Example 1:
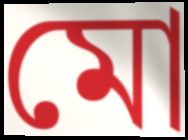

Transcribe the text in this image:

মো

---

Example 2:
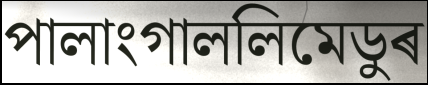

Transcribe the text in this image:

পালাংগাললিমেডুৰ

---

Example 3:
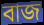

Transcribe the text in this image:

বাজ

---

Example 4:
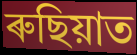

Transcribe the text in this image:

ৰুছিয়াত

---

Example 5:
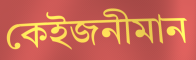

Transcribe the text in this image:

কেইজনীমান